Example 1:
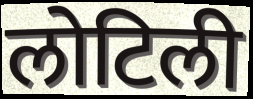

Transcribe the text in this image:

लोटिली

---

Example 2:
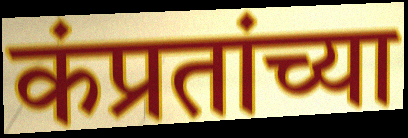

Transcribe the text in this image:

कंप्रतांच्या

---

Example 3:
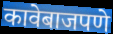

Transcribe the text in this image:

कावेबाजपणे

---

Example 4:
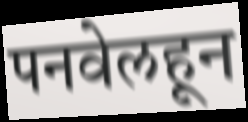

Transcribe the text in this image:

पनवेलहून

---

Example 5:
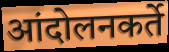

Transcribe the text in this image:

आंदोलनकर्ते